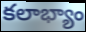
కలాభ్యాం